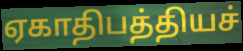
ஏகாதிபத்தியச்